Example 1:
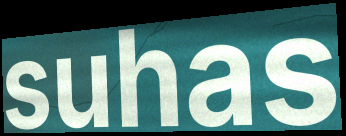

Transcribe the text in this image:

suhas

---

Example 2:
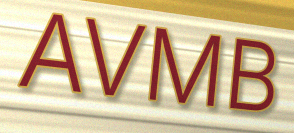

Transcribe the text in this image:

AVMB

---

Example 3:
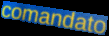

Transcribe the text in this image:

comandato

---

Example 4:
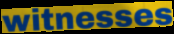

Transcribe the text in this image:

witnesses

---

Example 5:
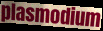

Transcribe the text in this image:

plasmodium